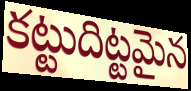
కట్టుదిట్టమైన